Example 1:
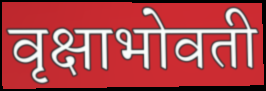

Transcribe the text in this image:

वृक्षाभोवती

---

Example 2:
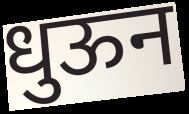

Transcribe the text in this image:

धुऊन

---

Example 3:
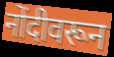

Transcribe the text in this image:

नोंदीवरून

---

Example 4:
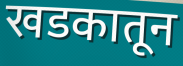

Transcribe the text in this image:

खडकातून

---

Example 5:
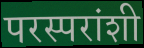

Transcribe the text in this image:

परस्परांशी